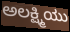
ಅಲಕ್ಷ್ಮಿಯು